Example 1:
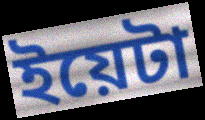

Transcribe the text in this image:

ইয়েটা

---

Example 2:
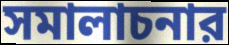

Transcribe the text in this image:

সমালাচনার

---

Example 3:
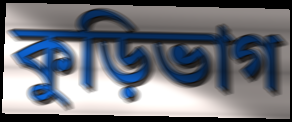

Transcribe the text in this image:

কুড়িভাগ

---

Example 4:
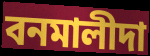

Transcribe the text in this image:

বনমালীদা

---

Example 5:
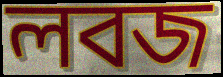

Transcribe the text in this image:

লবজ